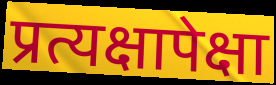
प्रत्यक्षापेक्षा